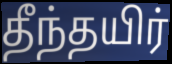
தீந்தயிர்